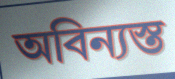
অবিন্যস্ত